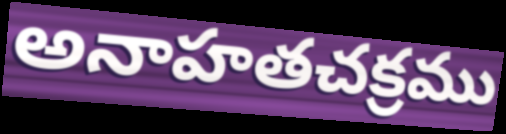
అనాహతచక్రము